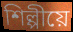
শিল্পীয়ে